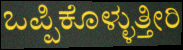
ಒಪ್ಪಿಕೊಳ್ಳುತ್ತೀರಿ